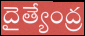
దైత్యేంద్ర